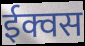
ईक्‍वस